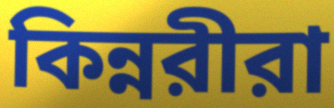
কিন্নরীরা